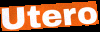
Utero